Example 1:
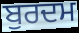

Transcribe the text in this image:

ਬੁਰਦਮ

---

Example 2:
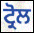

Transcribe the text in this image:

ਟ੍ਰੋਲ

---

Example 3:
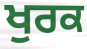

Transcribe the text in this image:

ਖੁਰਕ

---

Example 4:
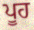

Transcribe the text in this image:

ਪੂਹ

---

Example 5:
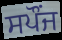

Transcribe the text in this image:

ਸਪੌਂਜ